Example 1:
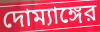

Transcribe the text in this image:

দোম্যাঙ্গের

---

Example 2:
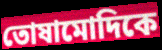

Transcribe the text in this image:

তোষামোদিকে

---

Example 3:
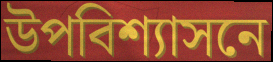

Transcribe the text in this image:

উপবিশ্যাসনে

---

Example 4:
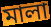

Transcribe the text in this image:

মালা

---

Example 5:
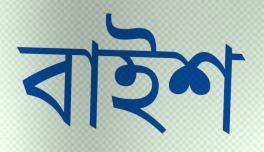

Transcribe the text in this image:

বাইশ